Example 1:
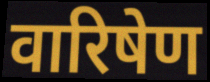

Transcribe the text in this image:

वारिषेण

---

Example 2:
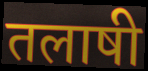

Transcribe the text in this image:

तलाषी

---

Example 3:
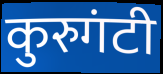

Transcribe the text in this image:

कुरुगंटी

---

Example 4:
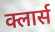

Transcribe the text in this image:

क्लार्स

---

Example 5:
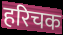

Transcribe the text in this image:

हरिचक